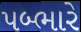
પબ્ભારે